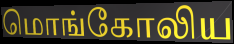
மொங்கோலிய